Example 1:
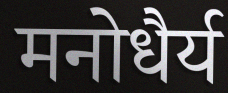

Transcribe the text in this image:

मनोधैर्य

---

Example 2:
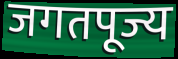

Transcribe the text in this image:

जगतपूज्य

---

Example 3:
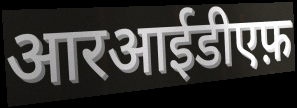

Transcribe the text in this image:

आरआईडीएफ़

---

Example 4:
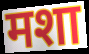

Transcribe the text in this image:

मशा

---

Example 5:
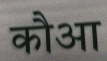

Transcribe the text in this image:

कौआ